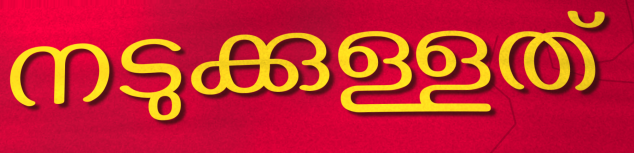
നടുക്കുള്ളത്